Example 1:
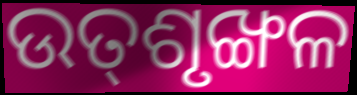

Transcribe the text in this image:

ଉତ୍‌ଶୃଙ୍ଖଳ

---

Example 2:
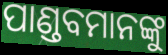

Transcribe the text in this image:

ପାଣ୍ଡବମାନଙ୍କୁ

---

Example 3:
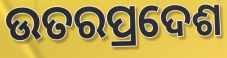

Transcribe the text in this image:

ଉତରପ୍ରଦେଶ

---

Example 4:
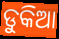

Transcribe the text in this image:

ଡୁକିଆ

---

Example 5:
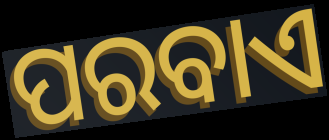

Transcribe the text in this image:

ପରବାଏ